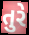
તુરે